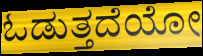
ಓಡುತ್ತದೆಯೋ